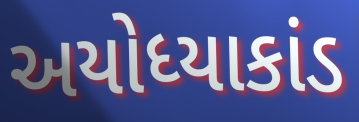
અયોધ્યાકાંડ